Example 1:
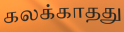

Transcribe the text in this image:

கலக்காதது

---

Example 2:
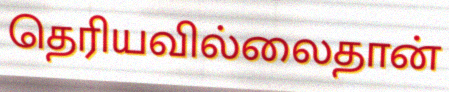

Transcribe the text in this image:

தெரியவில்லைதான்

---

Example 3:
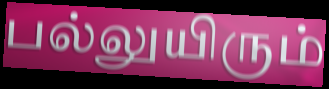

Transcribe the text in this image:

பல்லுயிரும்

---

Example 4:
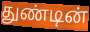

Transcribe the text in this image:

துண்டின்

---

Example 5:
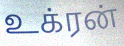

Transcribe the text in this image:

உக்ரன்